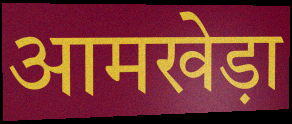
आमखेड़ा